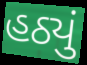
હઠ્યું